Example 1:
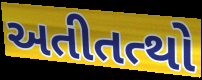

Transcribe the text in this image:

અતીતત્થો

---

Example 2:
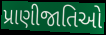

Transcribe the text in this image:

પ્રાણીજાતિઓ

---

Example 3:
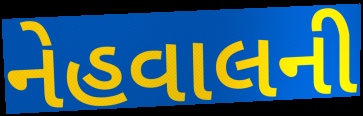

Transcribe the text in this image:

નેહવાલની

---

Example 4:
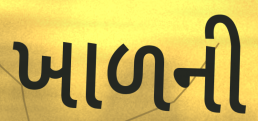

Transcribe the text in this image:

ખાળની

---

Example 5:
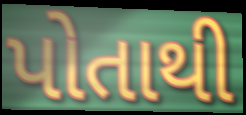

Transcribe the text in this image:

પોતાથી